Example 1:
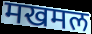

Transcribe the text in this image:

मखमल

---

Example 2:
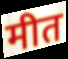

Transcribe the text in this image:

मीत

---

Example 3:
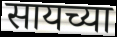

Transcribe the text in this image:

सायच्या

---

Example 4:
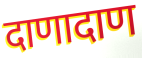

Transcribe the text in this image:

दाणादाण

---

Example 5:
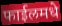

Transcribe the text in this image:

फाईलमधे